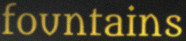
fountains